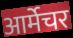
आर्मेचर